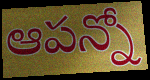
ఆపన్నో